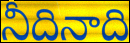
నీదినాది